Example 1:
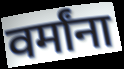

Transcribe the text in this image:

वर्मांना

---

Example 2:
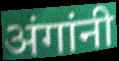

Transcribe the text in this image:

अंगांनी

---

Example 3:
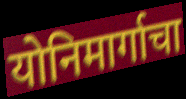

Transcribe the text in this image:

योनिमार्गाचा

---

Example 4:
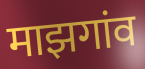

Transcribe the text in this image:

माझगांव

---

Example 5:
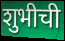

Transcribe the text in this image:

शुभीची